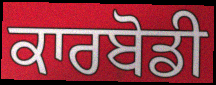
ਕਾਰਬੋਡੀ